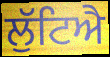
ਲੁੱਟਿਐ